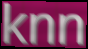
knn